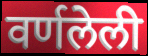
वर्णलेली